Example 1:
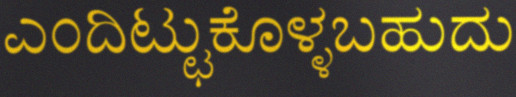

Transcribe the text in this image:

ಎಂದಿಟ್ಟುಕೊಳ್ಳಬಹುದು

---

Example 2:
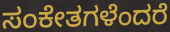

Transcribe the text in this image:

ಸಂಕೇತಗಳೆಂದರೆ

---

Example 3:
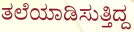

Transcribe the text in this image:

ತಲೆಯಾಡಿಸುತ್ತಿದ್ದ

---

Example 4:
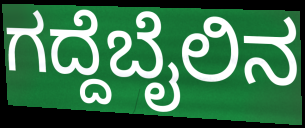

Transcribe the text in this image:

ಗದ್ದೆಬೈಲಿನ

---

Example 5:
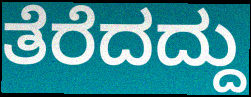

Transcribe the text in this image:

ತೆರೆದದ್ದು